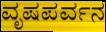
ವೃಷಪರ್ವನ